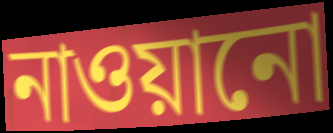
নাওয়ানো